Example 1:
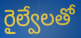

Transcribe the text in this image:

రైల్వేలతో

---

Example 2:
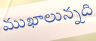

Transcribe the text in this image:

ముఖాలున్నది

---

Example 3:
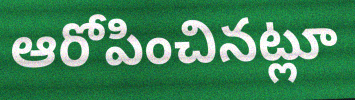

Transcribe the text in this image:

ఆరోపించినట్లూ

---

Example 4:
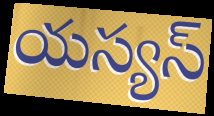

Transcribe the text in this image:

యస్యస్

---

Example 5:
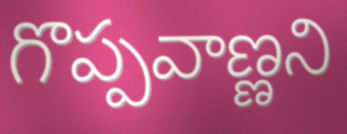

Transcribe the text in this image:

గొప్పవాణ్ణని